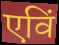
एविं